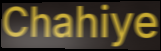
Chahiye